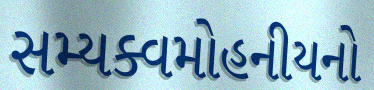
સમ્યક્વમોહનીયનો